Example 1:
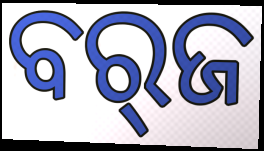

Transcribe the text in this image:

ବର୍‌ଜ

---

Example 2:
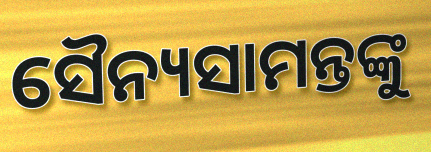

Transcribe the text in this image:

ସୈନ୍ୟସାମନ୍ତଙ୍କୁ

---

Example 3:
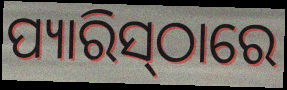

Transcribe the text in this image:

ପ୍ୟାରିସ୍‍ଠାରେ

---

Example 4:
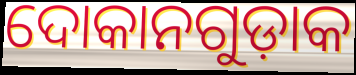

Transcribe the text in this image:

ଦୋକାନଗୁଡ଼ାକ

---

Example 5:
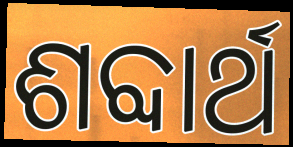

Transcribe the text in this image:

ଶବ୍ଦାର୍ଥ